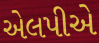
એલપીએ